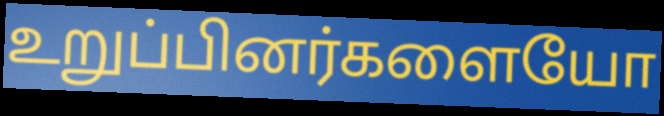
உறுப்பினர்களையோ